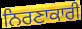
ਨਿਰਣਾਕਾਰੀ